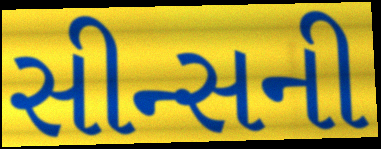
સીન્સની